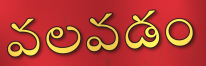
వలవడం